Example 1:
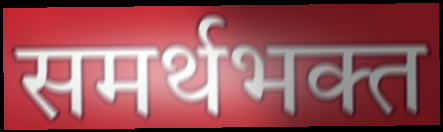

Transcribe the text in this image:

समर्थभक्त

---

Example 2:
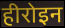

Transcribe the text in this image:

हीरोइन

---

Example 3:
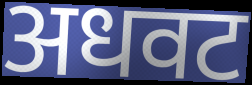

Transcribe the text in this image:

अधवट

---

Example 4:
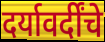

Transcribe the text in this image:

दर्यावर्दींचे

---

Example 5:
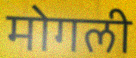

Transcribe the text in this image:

मोगली